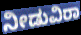
ನೀಡುವಿರಾ